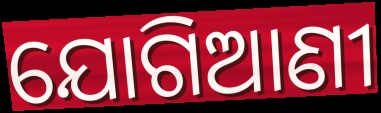
ଯୋଗିଆଣୀ